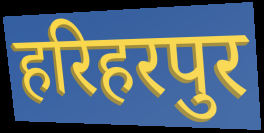
हरिहरपुर